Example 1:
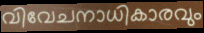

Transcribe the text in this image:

വിവേചനാധികാരവും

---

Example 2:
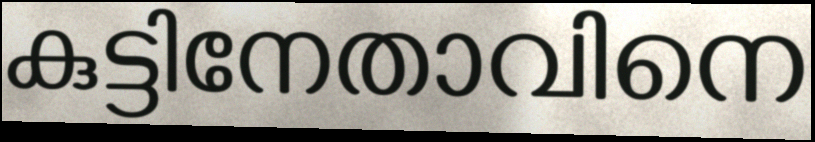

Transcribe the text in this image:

കുട്ടിനേതാവിനെ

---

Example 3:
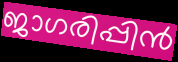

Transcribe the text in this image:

ജാഗരിപ്പിൻ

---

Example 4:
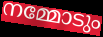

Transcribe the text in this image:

നമ്മോടും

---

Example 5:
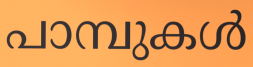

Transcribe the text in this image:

പാമ്പുകൾ